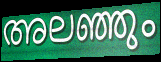
അലഞ്ഞും